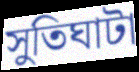
সুতিঘাটা